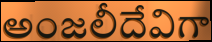
అంజలీదేవిగా